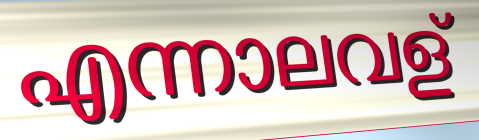
എന്നാലവള്